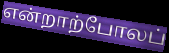
என்றாற்போலப்